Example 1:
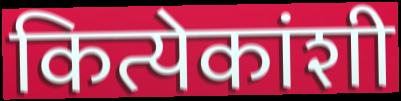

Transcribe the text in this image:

कित्येकांशी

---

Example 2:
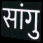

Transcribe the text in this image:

सांगु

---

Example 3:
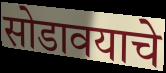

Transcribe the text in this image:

सोडावयाचे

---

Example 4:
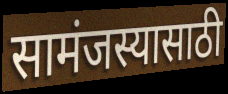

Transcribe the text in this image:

सामंजस्यासाठी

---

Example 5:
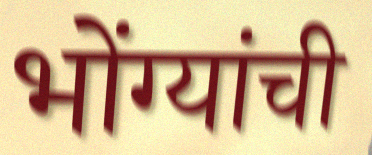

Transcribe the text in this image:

भोंग्यांची